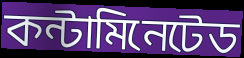
কন্টামিনেটেড